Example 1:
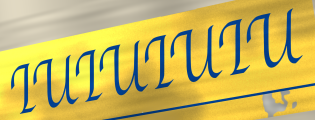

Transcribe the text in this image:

IUIUIUIU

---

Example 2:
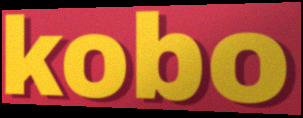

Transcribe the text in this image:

kobo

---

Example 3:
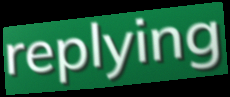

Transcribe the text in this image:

replying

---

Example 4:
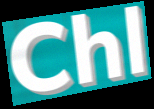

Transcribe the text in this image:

Chl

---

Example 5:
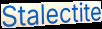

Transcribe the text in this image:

Stalectite